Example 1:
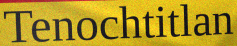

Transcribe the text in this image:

Tenochtitlan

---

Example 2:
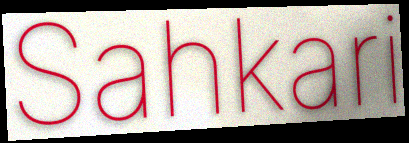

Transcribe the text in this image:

Sahkari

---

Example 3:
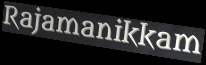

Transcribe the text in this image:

Rajamanikkam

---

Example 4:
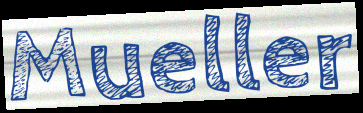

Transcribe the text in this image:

Mueller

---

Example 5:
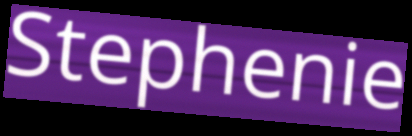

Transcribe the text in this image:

Stephenie